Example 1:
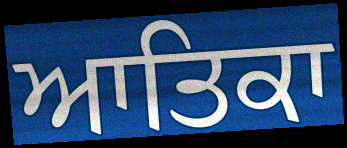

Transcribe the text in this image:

ਆਤਿਕਾ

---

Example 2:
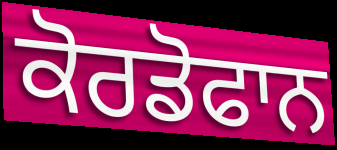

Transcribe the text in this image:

ਕੋਰਡੋਫਾਨ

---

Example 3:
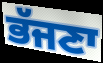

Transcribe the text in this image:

ਭੱਜਣਾ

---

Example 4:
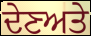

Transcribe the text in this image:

ਦੇਣਅਤੇ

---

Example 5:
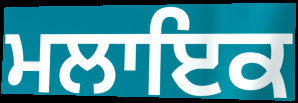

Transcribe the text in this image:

ਮਲਾਇਕ